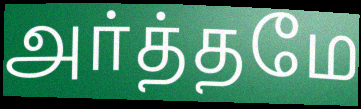
அர்த்தமே